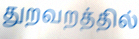
துறவறத்தில்